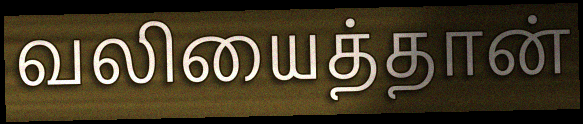
வலியைத்தான்